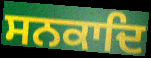
ਸਨਕਾਦਿ